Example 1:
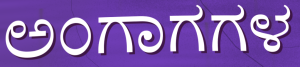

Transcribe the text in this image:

ಅಂಗಾಗಗಳ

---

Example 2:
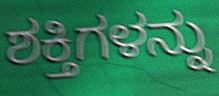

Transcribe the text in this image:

ಶಕ್ತಿಗಳನ್ನು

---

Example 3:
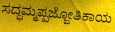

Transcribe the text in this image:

ಸದ್ಧಮ್ಮಪ್ಪಜ್ಜೋತಿಕಾಯ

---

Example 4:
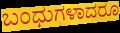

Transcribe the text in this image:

ಬಂಧುಗಳಾದರೂ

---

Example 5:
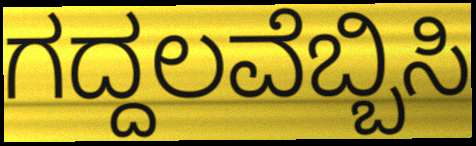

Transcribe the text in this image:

ಗದ್ದಲವೆಬ್ಬಿಸಿ